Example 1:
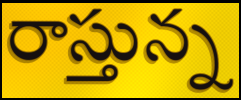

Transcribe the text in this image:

రాస్తున్న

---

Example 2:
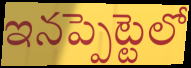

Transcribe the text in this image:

ఇనప్పెట్టెలో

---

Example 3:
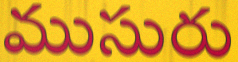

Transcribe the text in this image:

ముసురు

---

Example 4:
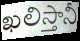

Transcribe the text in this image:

ఖలిస్తానీ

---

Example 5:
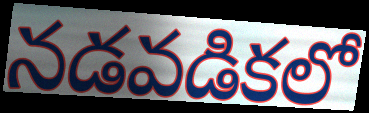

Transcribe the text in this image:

నడవడికలో